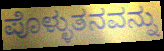
ಪೊಳ್ಳುತನವನ್ನು